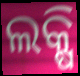
ଲକ୍ଷି